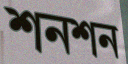
শনশন